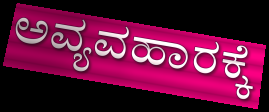
ಅವ್ಯವಹಾರಕ್ಕೆ